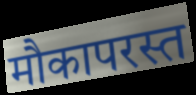
मौकापरस्त